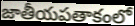
జాతీయపతాకంలో